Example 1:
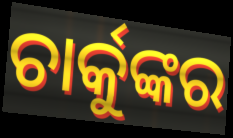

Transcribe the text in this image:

ଚାର୍କୁଙ୍କର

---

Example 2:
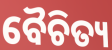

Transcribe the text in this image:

ବୈଚିତ୍ୟ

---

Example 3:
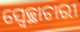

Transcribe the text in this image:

ସ୍ୱେଚ୍ଛାଚାରୀ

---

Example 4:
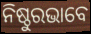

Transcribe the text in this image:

ନିଷ୍ଠୁରଭାବେ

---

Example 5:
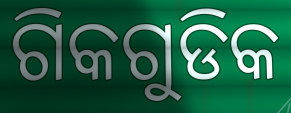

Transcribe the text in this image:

ଗିକଗୁଡିକ